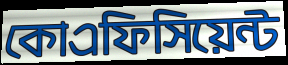
কোএফিসিয়েন্ট